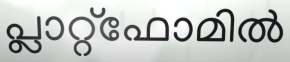
പ്ലാറ്റ്ഫോമിൽ